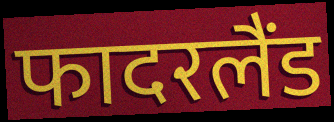
फादरलैंड